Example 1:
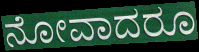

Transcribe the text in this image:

ನೋವಾದರೂ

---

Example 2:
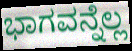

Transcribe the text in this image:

ಭಾಗವನ್ನೆಲ್ಲ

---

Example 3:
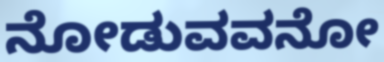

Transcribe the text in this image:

ನೋಡುವವನೋ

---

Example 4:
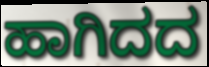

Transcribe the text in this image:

ಹಾಗಿದದ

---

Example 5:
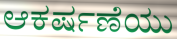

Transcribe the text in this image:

ಆಕರ್ಷಣೆಯು